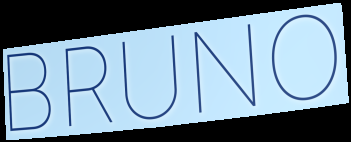
BRUNO